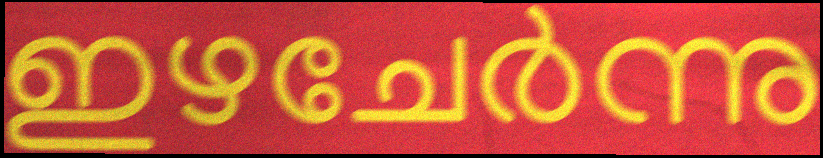
ഇഴചേർന്നു